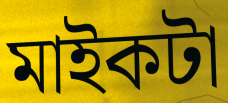
মাইকটা